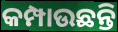
କମ୍ପାଉଛନ୍ତି